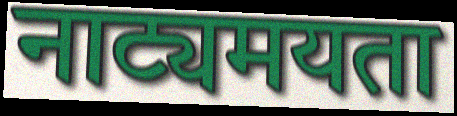
नाट्यमयता